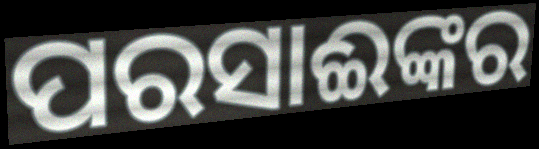
ପରସାଈଙ୍କର